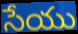
సేయు